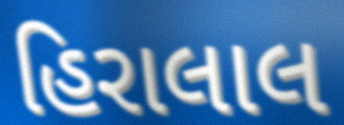
હિરાલાલ